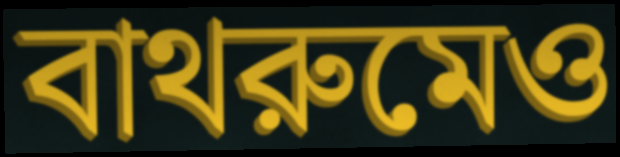
বাথরুমেও